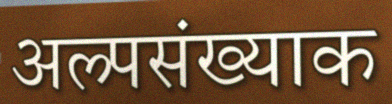
अल्पसंख्याक